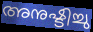
അനുഷ്ടിച്ചു